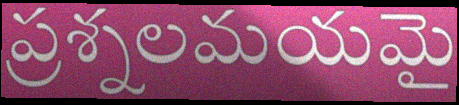
ప్రశ్నలమయమై